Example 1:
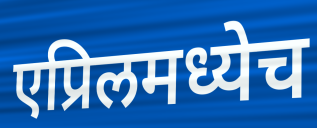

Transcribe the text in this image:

एप्रिलमध्येच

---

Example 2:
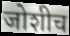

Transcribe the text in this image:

जोशीच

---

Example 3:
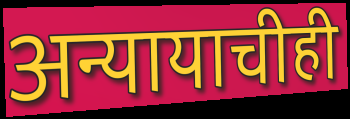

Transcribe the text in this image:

अन्यायाचीही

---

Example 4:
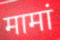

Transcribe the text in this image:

मामां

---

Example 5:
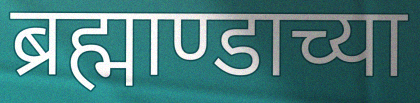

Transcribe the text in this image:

ब्रह्माण्डाच्या